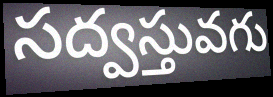
సద్వస్తువగు